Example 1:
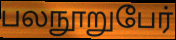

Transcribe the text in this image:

பலநூறுபேர்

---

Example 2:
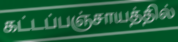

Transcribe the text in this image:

கட்டப்பஞ்சாயத்தில்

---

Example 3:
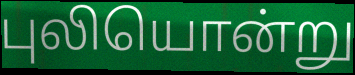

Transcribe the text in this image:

புலியொன்று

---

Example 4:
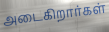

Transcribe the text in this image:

அடைகிறார்கள்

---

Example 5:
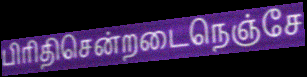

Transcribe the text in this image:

பிரிதிசென்றடைநெஞ்சே